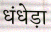
धंधेड़ा